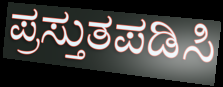
ಪ್ರಸ್ತುತಪಡಿಸಿ